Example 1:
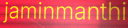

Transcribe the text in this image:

jaminmanthi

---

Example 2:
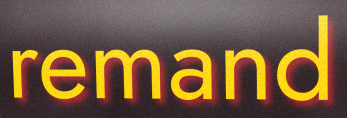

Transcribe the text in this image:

remand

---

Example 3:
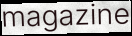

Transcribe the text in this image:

magazine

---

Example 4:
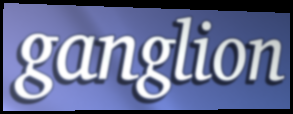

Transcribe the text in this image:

ganglion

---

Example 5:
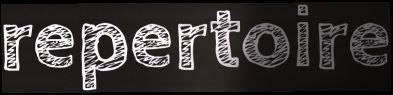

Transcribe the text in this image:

repertoire